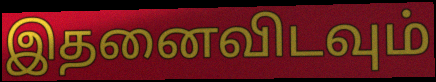
இதனைவிடவும்